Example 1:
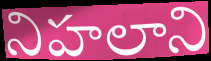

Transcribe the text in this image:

నిహలాని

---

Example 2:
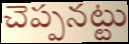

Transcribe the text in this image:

చెప్పనట్టు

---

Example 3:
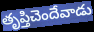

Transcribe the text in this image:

తృప్తిచెందేవాడు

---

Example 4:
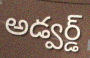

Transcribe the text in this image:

అడ్వర్డ్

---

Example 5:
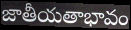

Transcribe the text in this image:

జాతీయతాభావం